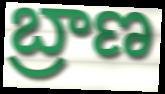
బ్రాణ